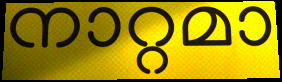
നാറ്റമാ